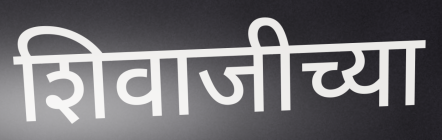
शिवाजीच्या